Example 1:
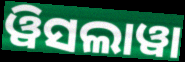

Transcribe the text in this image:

ୱିସଲାୱା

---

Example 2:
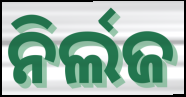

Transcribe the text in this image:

ନିର୍ଲଜ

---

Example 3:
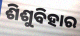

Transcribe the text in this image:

ଶିଶୁବିହାର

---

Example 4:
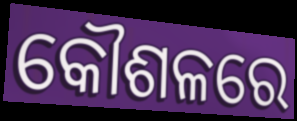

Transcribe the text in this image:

କୌଶଳରେ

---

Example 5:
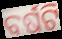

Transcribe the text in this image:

ବର୍ଷଟି